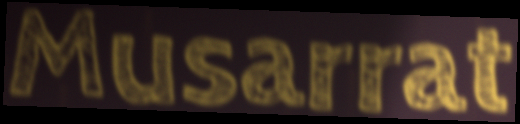
Musarrat